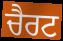
ਚੈਰਟ